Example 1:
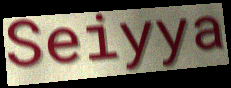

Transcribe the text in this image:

Seiyya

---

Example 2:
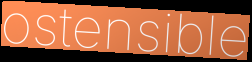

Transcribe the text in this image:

ostensible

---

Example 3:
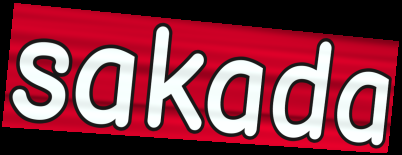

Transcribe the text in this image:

sakada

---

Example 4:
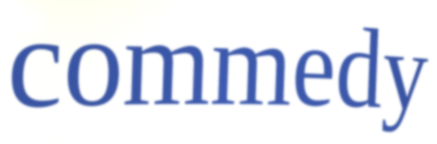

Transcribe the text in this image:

commedy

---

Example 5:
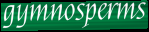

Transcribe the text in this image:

gymnosperms